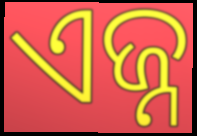
ଏଜ୍ନ